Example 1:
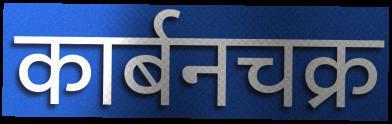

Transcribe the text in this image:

कार्बनचक्र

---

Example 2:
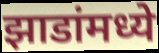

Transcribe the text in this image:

झाडांमध्ये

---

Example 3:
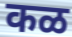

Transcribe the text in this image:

कळ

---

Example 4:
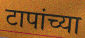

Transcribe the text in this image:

टापांच्या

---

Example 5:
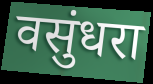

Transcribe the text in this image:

वसुंधरा